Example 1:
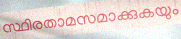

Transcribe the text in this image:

സ്ഥിരതാമസമാക്കുകയും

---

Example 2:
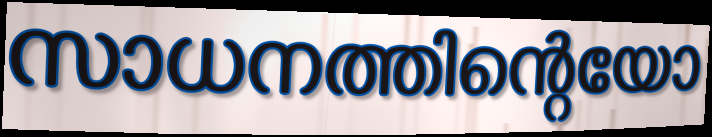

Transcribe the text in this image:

സാധനത്തിന്റെയോ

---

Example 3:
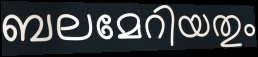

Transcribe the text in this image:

ബലമേറിയതും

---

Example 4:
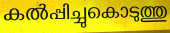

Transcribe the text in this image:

കൽപ്പിച്ചുകൊടുത്തു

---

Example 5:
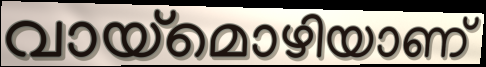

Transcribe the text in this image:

വായ്മൊഴിയാണ്